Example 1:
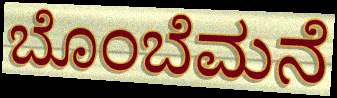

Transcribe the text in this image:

ಬೊಂಬೆಮನೆ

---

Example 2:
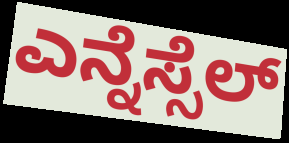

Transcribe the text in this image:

ಎನ್ನೆಸ್ಸೆಲ್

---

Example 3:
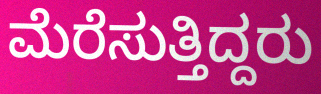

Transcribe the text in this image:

ಮೆರೆಸುತ್ತಿದ್ದರು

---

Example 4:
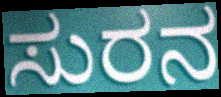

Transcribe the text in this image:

ಸುರನ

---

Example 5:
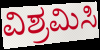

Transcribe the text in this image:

ವಿಶ್ರಮಿಸಿ